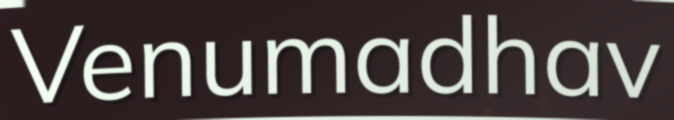
Venumadhav